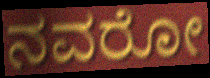
ನವರೋ